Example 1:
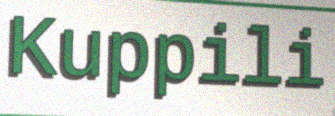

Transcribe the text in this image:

Kuppili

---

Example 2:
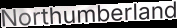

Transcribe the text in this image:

Northumberland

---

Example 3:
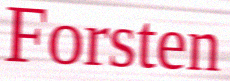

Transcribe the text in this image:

Forsten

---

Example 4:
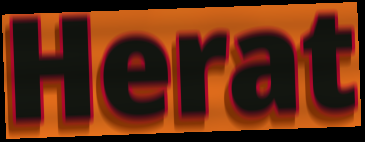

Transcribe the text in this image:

Herat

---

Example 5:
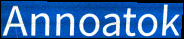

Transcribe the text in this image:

Annoatok